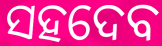
ସହଦେବ